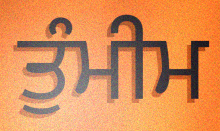
ਤੁੰਮੀਮ